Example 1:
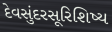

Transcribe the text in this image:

દેવસુંદરસૂરિશિષ્ય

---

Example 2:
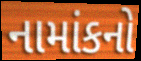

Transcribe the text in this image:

નામાંકનો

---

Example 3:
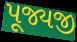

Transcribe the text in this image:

પૂજ્યજી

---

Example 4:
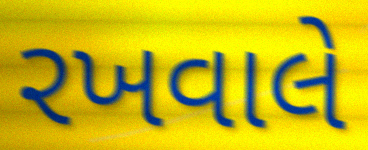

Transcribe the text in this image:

રખવાલે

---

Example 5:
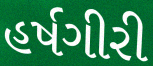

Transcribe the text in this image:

હર્ષગીરી